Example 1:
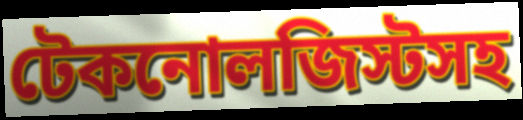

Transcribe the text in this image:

টেকনোলজিস্টসহ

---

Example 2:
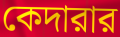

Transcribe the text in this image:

কেদারার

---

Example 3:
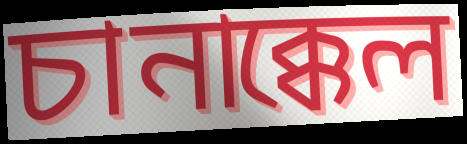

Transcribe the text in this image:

চানাক্কেল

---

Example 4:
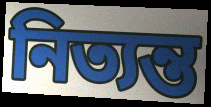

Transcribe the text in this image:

নিত্যন্ত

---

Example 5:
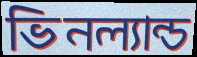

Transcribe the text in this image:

ভিনল্যান্ড